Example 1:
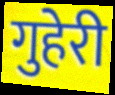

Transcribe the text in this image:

गुहेरी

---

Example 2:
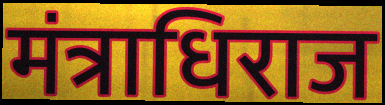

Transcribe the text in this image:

मंत्राधिराज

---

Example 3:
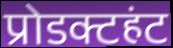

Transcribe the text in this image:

प्रोडक्टहंट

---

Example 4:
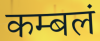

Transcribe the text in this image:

कम्बलं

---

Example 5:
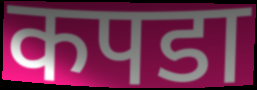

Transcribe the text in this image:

कपडा